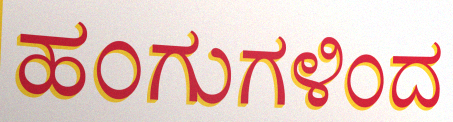
ಹಂಗುಗಳಿಂದ